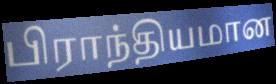
பிராந்தியமான